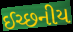
ઈચ્છનીય